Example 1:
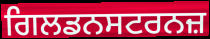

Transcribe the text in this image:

ਗਿਲਡਨਸਟਰਨਜ਼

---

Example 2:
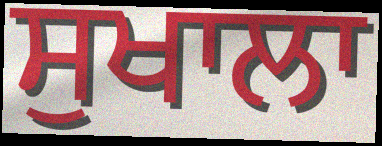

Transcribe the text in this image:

ਸੁਖਾਲਾ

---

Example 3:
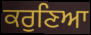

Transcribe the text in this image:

ਕਰੁਣਿਆ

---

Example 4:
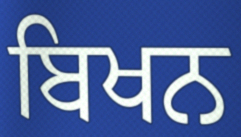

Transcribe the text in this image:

ਬਿਖਨ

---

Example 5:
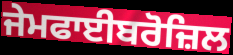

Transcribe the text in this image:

ਜੇਮਫਾਈਬਰੋਜ਼ਿਲ